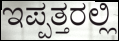
ಇಪ್ಪತ್ತರಲ್ಲಿ